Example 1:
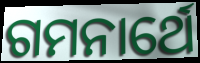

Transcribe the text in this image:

ଗମନାର୍ଥେ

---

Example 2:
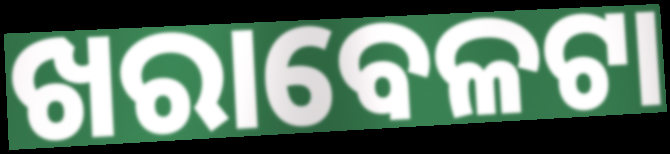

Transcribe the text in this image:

ଖରାବେଳଟା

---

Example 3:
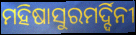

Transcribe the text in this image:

ମହିଷାସୁରମର୍ଦ୍ଦିନୀ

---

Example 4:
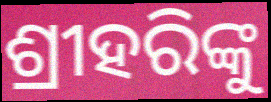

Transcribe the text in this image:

ଶ୍ରୀହରିଙ୍କୁ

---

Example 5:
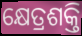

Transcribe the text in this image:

କ୍ଷେତ୍ରଶକ୍ତି